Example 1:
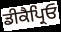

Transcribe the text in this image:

ਡੀਕੈਪ੍ਰਿਓ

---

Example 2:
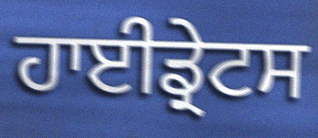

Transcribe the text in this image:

ਹਾਈਡ੍ਰੇਟਸ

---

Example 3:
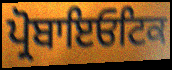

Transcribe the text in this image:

ਪ੍ਰੋਬਾਇਓਟਿਕ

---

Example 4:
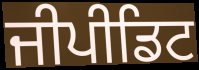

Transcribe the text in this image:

ਜੀਪੀਡਿਟ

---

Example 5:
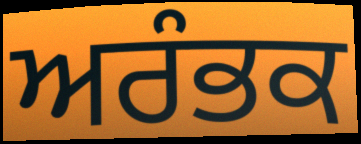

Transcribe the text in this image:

ਅਰੰਭਕ